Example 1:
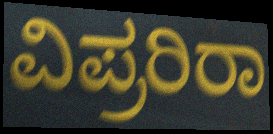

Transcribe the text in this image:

ವಿಪ್ರರಿರಾ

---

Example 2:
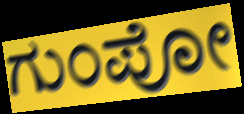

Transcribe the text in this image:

ಗುಂಪೋ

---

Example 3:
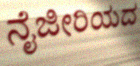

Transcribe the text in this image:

ನೈಜೀರಿಯದ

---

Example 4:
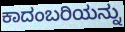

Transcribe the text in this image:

ಕಾದಂಬರಿಯನ್ನು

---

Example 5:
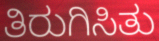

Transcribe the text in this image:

ತಿರುಗಿಸಿತು